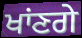
ਖਾਂਣਗੇ